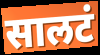
सालटं